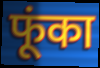
फूंका